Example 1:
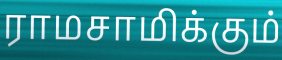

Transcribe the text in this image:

ராமசாமிக்கும்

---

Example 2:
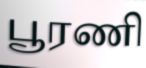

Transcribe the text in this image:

பூரணி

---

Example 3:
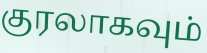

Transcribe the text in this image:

குரலாகவும்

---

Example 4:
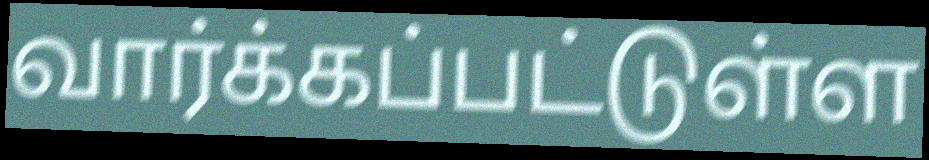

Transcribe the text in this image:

வார்க்கப்பட்டுள்ள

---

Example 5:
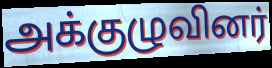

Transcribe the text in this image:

அக்குழுவினர்